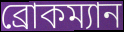
ব্রোকম্যান